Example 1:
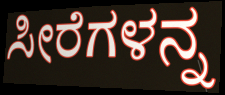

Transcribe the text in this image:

ಸೀರೆಗಳನ್ನ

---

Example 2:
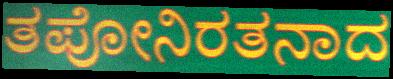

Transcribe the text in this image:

ತಪೋನಿರತನಾದ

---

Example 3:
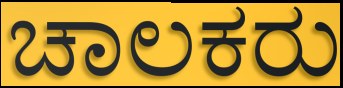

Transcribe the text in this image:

ಚಾಲಕರು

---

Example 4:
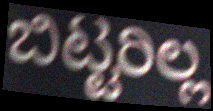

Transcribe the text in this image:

ಬಿಟ್ಟರಿಲ್ಲ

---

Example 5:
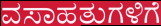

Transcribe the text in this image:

ವಸಾಹತುಗಳಿಗೆ